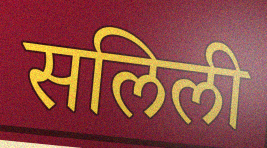
सलिली